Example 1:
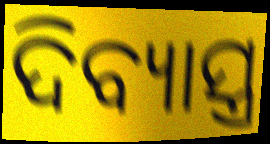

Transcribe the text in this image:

ଦିବ୍ୟାସ୍ତ୍ର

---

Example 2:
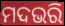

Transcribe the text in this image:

ମଦଭରି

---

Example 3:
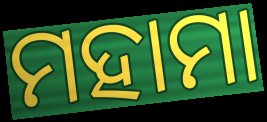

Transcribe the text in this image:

ମହାମା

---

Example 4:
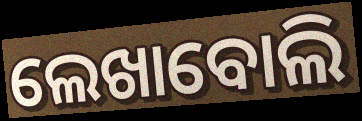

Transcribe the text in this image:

ଲେଖାବୋଲି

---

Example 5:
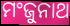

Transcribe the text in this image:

ମଂଜୁନାଥ